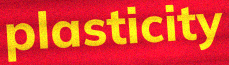
plasticity